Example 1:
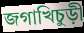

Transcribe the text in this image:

জগাখিচুড়ী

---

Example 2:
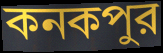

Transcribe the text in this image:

কনকপুর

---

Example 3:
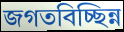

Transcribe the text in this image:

জগতবিচ্ছিন্ন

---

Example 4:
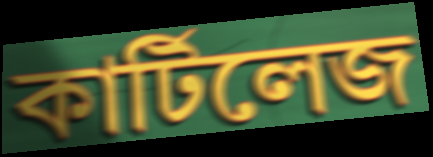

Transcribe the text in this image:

কার্টিলেজ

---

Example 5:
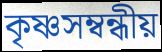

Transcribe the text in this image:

কৃষ্ণসম্বন্ধীয়